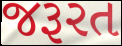
જરૂરત